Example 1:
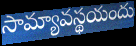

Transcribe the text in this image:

సామ్యావస్థయందు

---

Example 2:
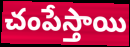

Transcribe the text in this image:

చంపేస్తాయి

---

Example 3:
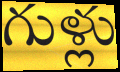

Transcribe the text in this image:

గుళ్లు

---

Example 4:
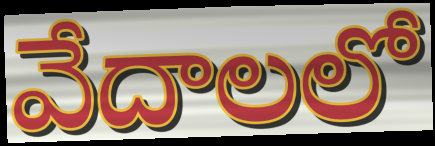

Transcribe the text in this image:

వేదాలలో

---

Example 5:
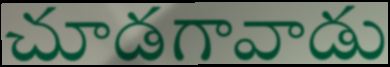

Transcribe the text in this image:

చూడగావాడు